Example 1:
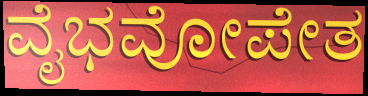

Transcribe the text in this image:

ವೈಭವೋಪೇತ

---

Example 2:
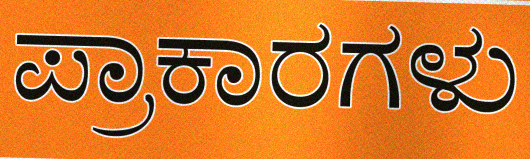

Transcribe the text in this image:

ಪ್ರಾಕಾರಗಳು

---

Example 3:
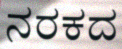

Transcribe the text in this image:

ನರಕದ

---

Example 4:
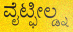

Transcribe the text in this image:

ವೈಟ್ಫೀಲ್ಡ್ನ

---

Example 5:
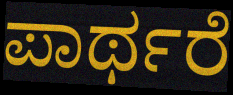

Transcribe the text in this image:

ಪಾರ್ಥರೆ